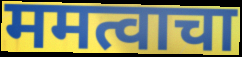
ममत्वाचा